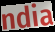
ndia